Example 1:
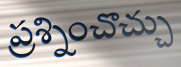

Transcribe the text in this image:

ప్రశ్నించొచ్చు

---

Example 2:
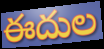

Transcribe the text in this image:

ఈదుల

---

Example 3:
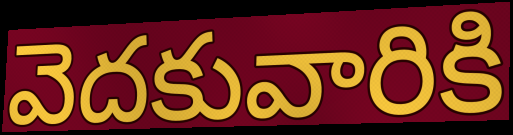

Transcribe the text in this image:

వెదకువారికి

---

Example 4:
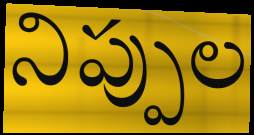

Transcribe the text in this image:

నిప్పుల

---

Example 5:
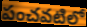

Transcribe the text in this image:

పంచవటిలో